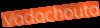
Vadachouta